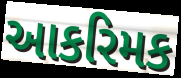
આકરિમક